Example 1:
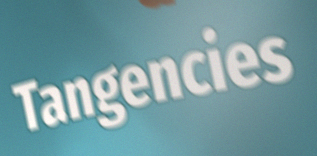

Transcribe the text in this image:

Tangencies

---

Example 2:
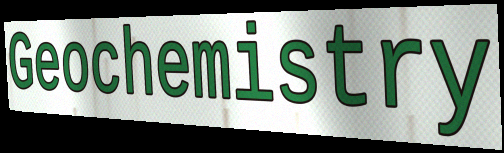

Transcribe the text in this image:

Geochemistry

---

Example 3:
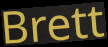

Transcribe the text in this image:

Brett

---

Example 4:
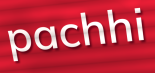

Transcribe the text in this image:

pachhi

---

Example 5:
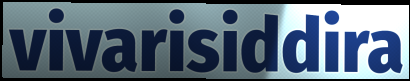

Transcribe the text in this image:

vivarisiddira